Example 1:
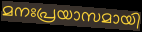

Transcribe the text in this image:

മനഃപ്രയാസമായി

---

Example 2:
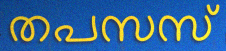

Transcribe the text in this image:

തപസസ്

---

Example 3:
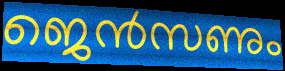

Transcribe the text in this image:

ജെൻസണും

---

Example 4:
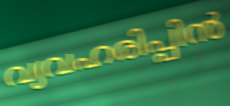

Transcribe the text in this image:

വ്യവഹരിപ്പിൻ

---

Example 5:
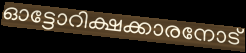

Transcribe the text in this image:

ഓട്ടോറിക്ഷക്കാരനോട്